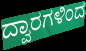
ದ್ವಾರಗಳಿಂದ